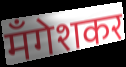
मँगेशकर